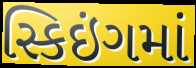
સ્કિઇંગમાં